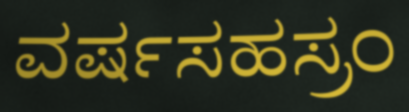
ವರ್ಷಸಹಸ್ರಂ